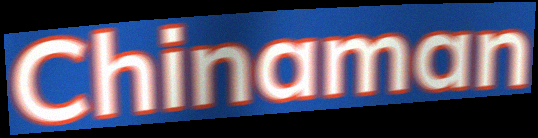
Chinaman